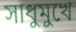
সাধুমুখে